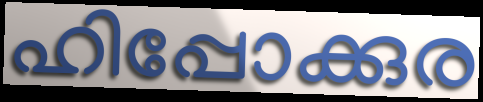
ഹിപ്പോക്കുര